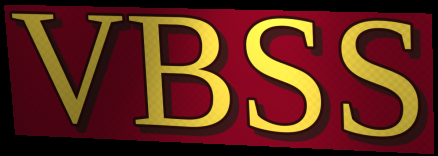
VBSS